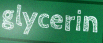
glycerin